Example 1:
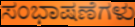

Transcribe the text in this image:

ಸಂಭಾಷಣೆಗಳು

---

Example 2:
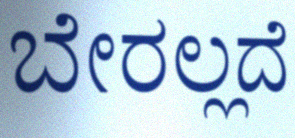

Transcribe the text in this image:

ಬೇರಲ್ಲದೆ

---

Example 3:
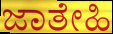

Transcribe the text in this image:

ಜಾತೇಹಿ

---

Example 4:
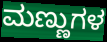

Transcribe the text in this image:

ಮಣ್ಣುಗಳ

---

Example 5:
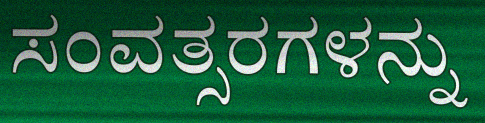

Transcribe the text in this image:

ಸಂವತ್ಸರಗಳನ್ನು